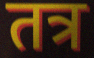
तत्र